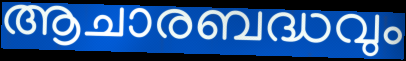
ആചാരബദ്ധവും